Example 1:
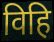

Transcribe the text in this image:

विहि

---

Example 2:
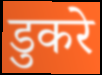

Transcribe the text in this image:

डुकरे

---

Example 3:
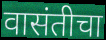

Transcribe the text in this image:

वासंतीचा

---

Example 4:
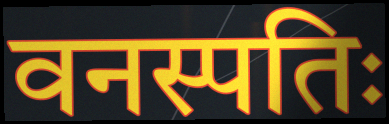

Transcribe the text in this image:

वनस्पतिः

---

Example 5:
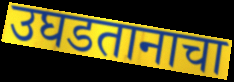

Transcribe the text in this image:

उघडतानाचा